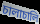
চালাচালি